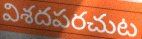
విశదపరచుట